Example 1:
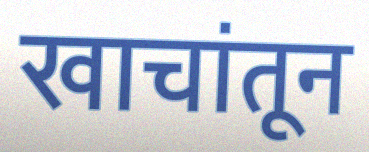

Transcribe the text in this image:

खाचांतून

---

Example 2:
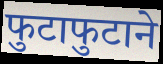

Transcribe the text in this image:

फुटाफुटाने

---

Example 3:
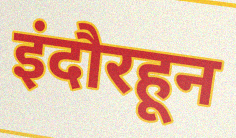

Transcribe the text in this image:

इंदौरहून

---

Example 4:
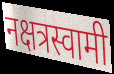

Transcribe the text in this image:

नक्षत्रस्वामी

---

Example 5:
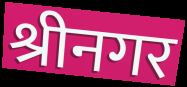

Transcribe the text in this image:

श्रीनगर